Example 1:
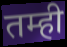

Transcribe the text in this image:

तम्ही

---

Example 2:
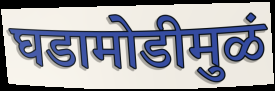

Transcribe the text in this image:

घडामोडीमुळं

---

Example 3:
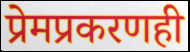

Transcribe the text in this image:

प्रेमप्रकरणही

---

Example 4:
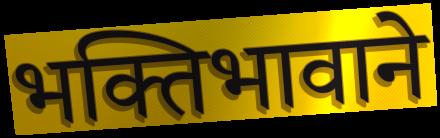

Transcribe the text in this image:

भक्तिभावाने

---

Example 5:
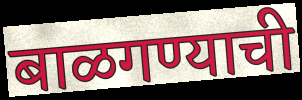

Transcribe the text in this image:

बाळगण्याची